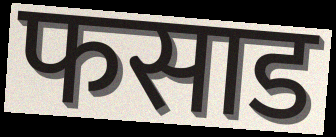
फसाड